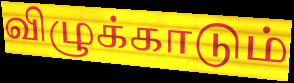
விழுக்காடும்